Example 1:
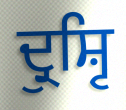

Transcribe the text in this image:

ਦ੍ਰੁਸ਼੍ਟਿ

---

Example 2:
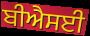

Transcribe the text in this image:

ਬੀਐਸਈ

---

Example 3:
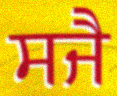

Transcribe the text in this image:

ਸਜੈ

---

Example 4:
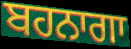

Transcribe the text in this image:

ਬਹਨਾਗਾ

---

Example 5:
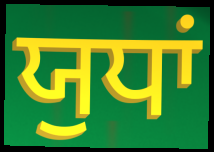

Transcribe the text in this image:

ਯੁਧਾਂ